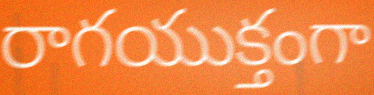
రాగయుక్తంగా